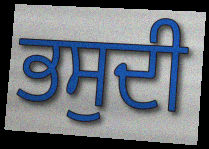
ਭਸੁਦੀ